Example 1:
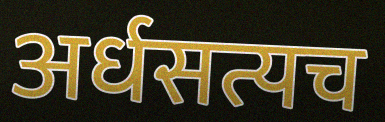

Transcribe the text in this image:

अर्धसत्यच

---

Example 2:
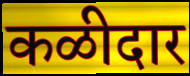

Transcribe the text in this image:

कळीदार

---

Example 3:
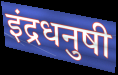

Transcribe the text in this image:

इंद्रधनुषी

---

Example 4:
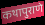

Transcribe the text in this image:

कथापुराणे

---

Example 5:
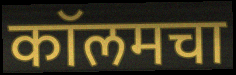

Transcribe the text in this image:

कॉलमचा